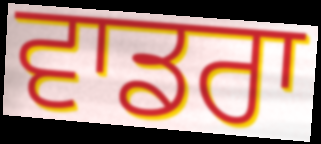
ਵਾਡਰਾ